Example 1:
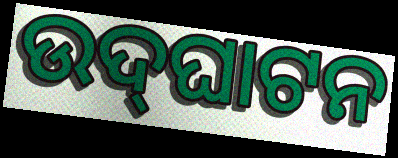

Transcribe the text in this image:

ଉଦ୍‍ଘାଟନ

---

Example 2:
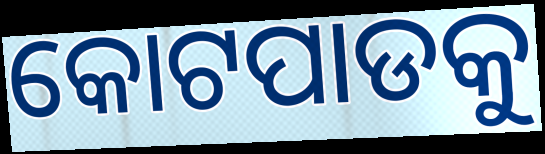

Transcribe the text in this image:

କୋଟପାଡକୁ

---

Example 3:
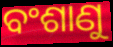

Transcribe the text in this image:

ବଂଶାଣୁ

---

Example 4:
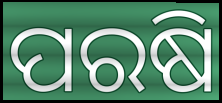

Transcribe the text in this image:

ପରଷି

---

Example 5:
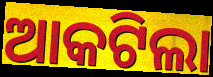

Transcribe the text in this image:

ଆକଟିଲା